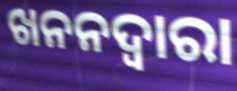
ଖନନଦ୍ୱାରା